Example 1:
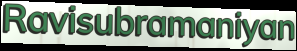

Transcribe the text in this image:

Ravisubramaniyan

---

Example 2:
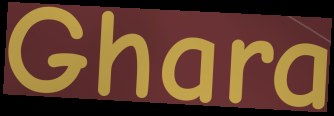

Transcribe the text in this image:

Ghara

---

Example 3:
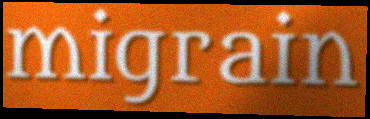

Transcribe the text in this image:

migrain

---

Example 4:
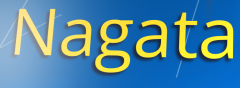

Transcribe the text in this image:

Nagata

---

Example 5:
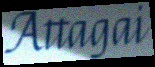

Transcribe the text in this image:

Attagai